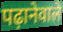
पढ़ानेवाले